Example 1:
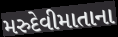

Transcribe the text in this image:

મરુદેવીમાતાના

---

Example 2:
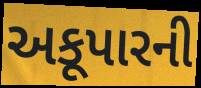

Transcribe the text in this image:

અકૂપારની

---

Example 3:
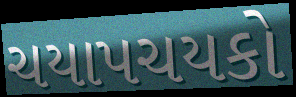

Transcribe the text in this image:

ચયાપચયકો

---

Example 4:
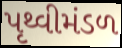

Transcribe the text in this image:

પૃથ્વીમંડળ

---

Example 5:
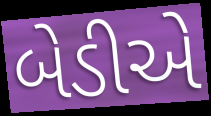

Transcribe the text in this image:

બેડીએ